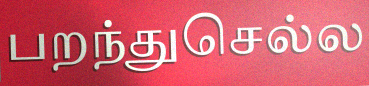
பறந்துசெல்ல